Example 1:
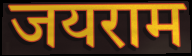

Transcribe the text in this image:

जयराम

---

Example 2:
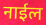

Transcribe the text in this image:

नाईल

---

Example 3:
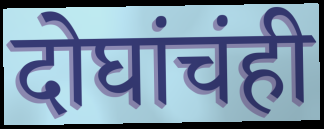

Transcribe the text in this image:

दोघांचंही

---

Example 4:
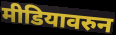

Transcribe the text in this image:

मीडियावरुन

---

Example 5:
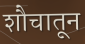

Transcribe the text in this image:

शौचातून